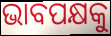
ଭାବପକ୍ଷକୁ